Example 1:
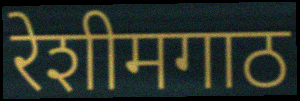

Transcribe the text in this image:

रेशीमगाठ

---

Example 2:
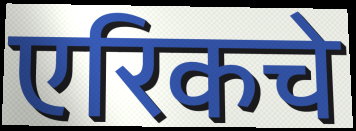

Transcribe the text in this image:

एरिकचे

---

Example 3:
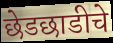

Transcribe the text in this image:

छेडछाडीचे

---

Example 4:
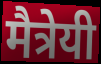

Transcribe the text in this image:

मैत्रेयी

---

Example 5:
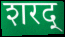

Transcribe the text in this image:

शरद्